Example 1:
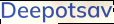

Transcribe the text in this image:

Deepotsav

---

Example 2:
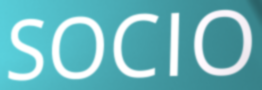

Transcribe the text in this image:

SOCIO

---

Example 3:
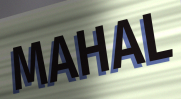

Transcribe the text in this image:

MAHAL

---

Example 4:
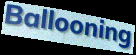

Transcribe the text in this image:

Ballooning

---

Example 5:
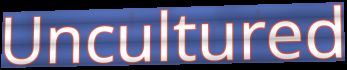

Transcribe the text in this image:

Uncultured